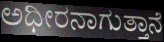
ಅಧೀರನಾಗುತ್ತಾನೆ